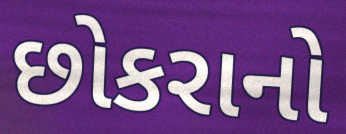
છોકરાનો